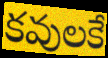
కవులకే